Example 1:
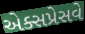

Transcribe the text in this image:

એક્સપ્રેસવે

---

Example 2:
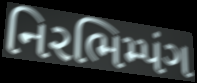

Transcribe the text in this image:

નિરભિમ્પંગ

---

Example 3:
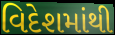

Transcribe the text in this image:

વિદેશમાંથી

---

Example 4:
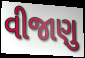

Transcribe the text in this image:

વીજાણુ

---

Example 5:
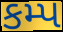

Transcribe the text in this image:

કમ્પ